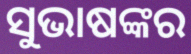
ସୁଭାଷଙ୍କର